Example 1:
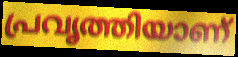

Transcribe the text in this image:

പ്രവൃത്തിയാണ്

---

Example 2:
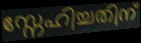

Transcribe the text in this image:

സ്നേഹിച്ചതിന്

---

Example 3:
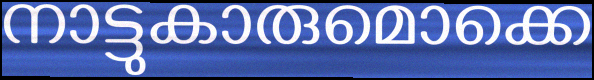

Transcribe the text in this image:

നാട്ടുകാരുമൊക്കെ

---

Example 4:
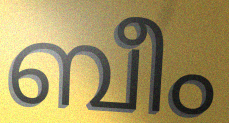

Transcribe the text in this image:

ബീം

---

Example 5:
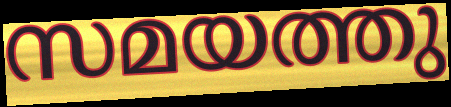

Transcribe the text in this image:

സമയത്തു